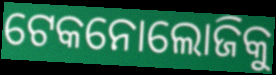
ଟେକନୋଲୋଜିକୁ